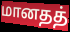
மானதத்